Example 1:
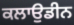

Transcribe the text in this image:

ਕਲਾਉਡੀਨ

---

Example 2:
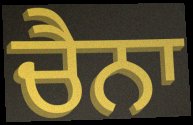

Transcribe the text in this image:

ਚੈਨਾ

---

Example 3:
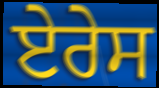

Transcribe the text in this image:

ਏਰੇਸ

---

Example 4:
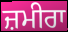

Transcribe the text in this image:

ਜ਼ਮੀਰਾ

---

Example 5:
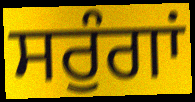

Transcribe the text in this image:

ਸਰੁੰਗਾਂ